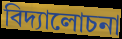
বিদ্যালোচনা